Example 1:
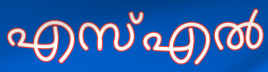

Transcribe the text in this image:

എസ്എൽ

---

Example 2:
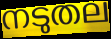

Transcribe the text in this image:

നടുതല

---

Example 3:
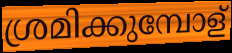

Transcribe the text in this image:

ശ്രമിക്കുമ്പോള്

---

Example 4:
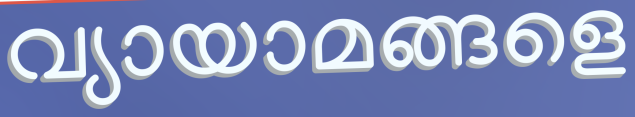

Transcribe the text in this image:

വ്യായാമങ്ങളെ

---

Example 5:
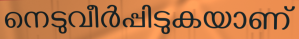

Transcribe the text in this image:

നെടുവീർപ്പിടുകയാണ്